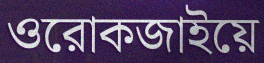
ওরোকজাইয়ে